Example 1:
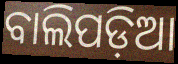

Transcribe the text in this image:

ବାଲିପଡ଼ିଆ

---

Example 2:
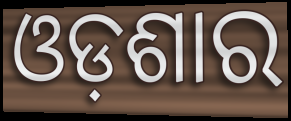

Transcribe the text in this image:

ଓଡ଼ଶାର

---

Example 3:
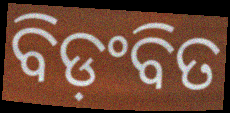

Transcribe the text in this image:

ବିଡ଼ଂବିତ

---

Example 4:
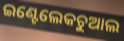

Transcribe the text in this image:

ଇଣ୍ଟେଲେକଚୁଆଲ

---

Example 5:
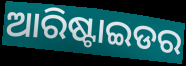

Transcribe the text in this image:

ଆରିଷ୍ଟାଇଡର